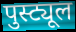
पुस्ट्यूल